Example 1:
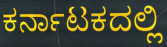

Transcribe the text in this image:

ಕರ್ನಾಟಕದಲ್ಲಿ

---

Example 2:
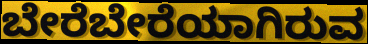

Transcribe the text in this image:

ಬೇರೆಬೇರೆಯಾಗಿರುವ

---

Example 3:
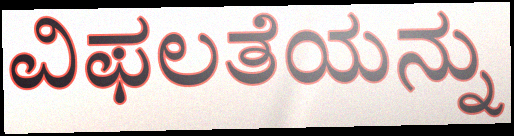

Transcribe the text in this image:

ವಿಫಲತೆಯನ್ನು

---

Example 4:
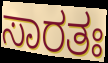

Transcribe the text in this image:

ಸಾರತಃ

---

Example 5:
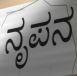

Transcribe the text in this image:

ನೃಪನ